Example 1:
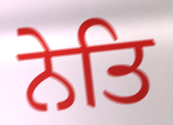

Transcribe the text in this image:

ਨੇਤਿ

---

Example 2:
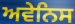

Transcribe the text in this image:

ਅਵੇਨਿਸ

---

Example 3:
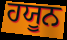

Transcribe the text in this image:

ਹਯੂਨ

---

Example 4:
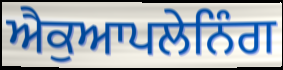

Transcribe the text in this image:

ਐਕੁਆਪਲੇਨਿੰਗ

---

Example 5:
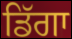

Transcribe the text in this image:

ਡਿੱਗਾ